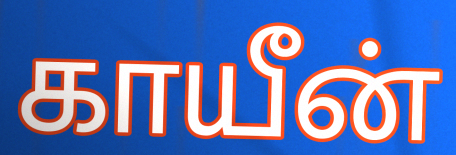
காயீன்